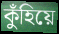
কুঁহিয়ে